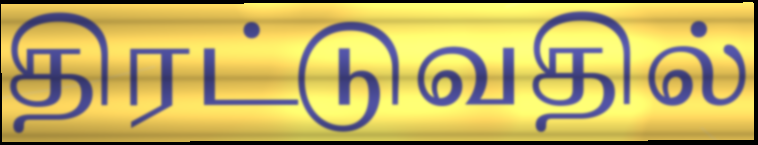
திரட்டுவதில்